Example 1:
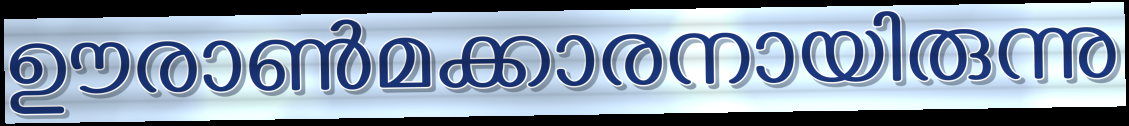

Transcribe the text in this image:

ഊരാൺമക്കാരനായിരുന്നു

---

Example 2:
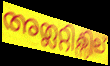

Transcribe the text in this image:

അത്ലറ്റിക്സില്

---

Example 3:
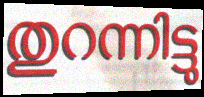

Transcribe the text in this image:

തുറന്നിട്ടു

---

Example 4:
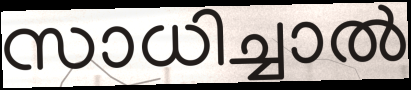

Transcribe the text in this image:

സാധിച്ചാൽ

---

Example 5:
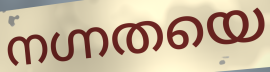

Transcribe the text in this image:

നഗ്നതയെ